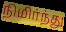
நிமிர்ந்து